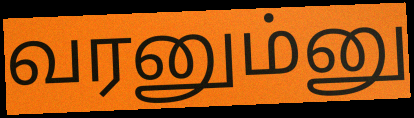
வரனும்னு